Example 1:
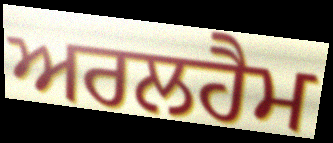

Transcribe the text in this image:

ਅਰਲਹੈਮ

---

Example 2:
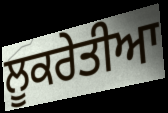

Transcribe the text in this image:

ਲੂਕਰੇਤੀਆ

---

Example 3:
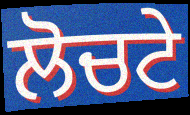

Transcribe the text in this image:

ਲੋਚਟੇ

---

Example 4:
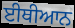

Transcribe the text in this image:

ਈਥੀਆਨ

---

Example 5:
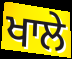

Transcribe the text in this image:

ਖਾਲੇ